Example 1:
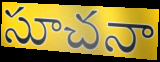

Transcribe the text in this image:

సూచనా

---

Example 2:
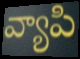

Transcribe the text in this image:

వ్యాపి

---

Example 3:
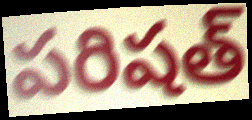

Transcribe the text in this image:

పరిషత్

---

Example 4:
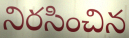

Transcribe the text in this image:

నిరసించిన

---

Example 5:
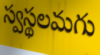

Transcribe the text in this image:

స్వస్థలమగు